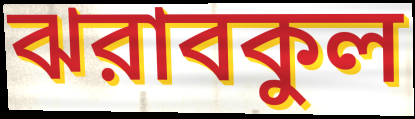
ঝরাবকুল